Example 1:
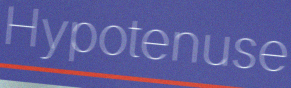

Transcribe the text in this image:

Hypotenuse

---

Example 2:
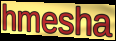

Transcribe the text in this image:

hmesha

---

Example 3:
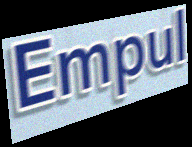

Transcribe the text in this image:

Empul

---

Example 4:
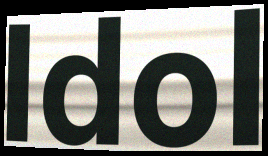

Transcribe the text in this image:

Idol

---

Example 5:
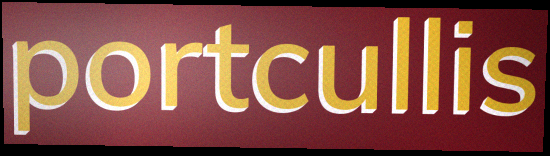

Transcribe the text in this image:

portcullis